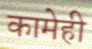
कामेही